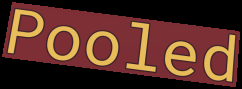
Pooled